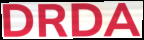
DRDA